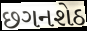
છગનશેઠ